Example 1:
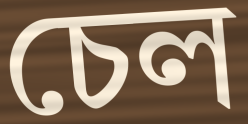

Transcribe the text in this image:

চেল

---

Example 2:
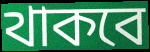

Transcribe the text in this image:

থাকবে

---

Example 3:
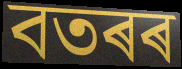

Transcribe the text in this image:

বতৰৰ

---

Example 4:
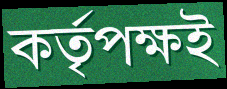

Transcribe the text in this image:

কৰ্তৃপক্ষই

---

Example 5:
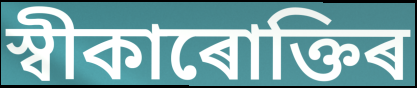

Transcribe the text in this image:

স্বীকাৰোক্তিৰ